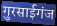
गुरसाईगंज